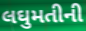
લઘુમતીની